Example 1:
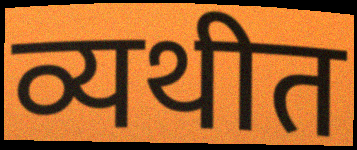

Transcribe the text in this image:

व्यथीत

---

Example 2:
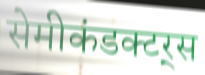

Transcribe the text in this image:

सेमीकंडक्टर्स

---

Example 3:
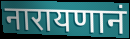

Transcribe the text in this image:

नारायणानं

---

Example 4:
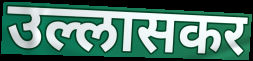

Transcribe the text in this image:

उल्लासकर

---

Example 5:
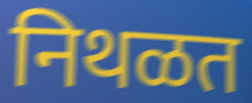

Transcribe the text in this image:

निथळत